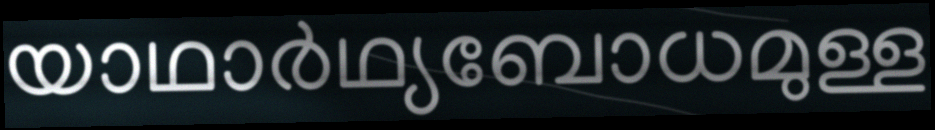
യാഥാർഥ്യബോധമുള്ള